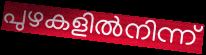
പുഴകളിൽനിന്ന്